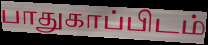
பாதுகாப்பிடம்